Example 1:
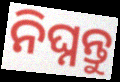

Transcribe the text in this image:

ନିଘ୍ନନ୍ତୁ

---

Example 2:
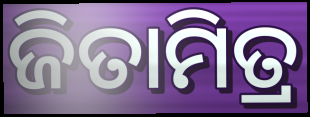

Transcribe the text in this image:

ଜିତାମିତ୍ର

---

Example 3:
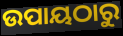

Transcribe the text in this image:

ଉପାୟଠାରୁ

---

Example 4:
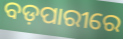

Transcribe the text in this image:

ବଡ଼ପାରୀରେ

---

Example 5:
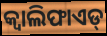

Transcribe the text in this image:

କ୍ୱାଲିଫାଏଡ୍